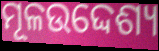
ମୂଳଉଦ୍ଦେଶ୍ୟ